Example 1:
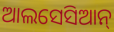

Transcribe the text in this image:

ଆଲସେସିଆନ୍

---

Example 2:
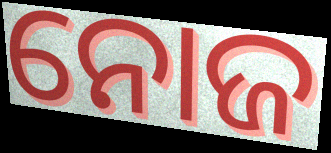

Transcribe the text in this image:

ନୋଜ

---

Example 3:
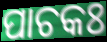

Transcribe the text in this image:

ପାଚକଃ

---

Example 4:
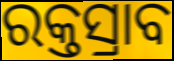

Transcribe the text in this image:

ରକ୍ତସ୍ରାବ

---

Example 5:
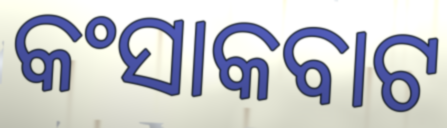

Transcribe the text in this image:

କଂସାକବାଟ